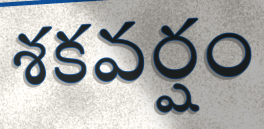
శకవర్షం